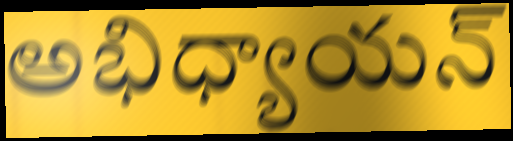
అభిధ్యాయన్